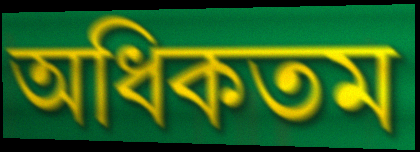
অধিকতম